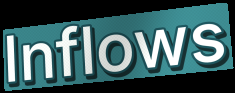
Inflows